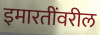
इमारतींवरील